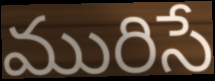
మురిసే